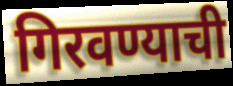
गिरवण्याची